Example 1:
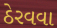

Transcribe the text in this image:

ઠેરવવા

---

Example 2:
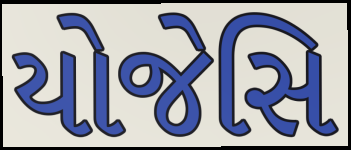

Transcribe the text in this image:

યોજેસિ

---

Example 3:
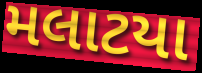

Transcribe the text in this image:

મલાટયા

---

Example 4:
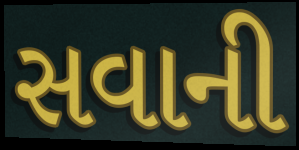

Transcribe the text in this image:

સવાની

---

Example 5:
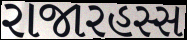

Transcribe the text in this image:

રાજારહસ્સ